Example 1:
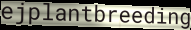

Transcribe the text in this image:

ejplantbreeding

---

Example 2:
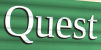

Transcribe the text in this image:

Quest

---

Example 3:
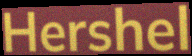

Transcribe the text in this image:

Hershel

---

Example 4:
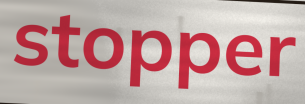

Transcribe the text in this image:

stopper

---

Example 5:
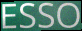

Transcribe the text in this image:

ESSO